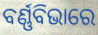
ବର୍ଣ୍ଣବିଭାରେ